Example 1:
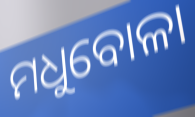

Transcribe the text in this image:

ମଧୁବୋଳା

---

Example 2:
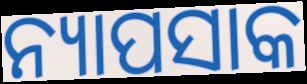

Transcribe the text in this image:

ନ୍ୟାପସାକ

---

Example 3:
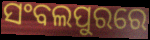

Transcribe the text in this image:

ସଂବଲପୁରରେ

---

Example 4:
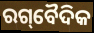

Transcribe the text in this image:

ରଗ୍‌ବୈଦିକ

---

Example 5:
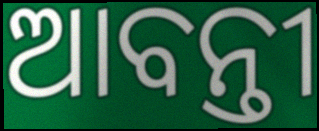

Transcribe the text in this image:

ଆବନ୍ତୀ